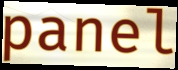
panel